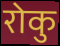
रोकु